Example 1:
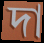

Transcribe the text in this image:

দা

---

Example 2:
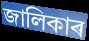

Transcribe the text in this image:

জালিকাৰ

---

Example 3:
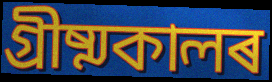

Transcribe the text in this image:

গ্ৰীষ্মকালৰ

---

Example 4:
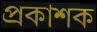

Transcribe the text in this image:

প্ৰকাশক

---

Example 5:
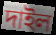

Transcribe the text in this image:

দাইল